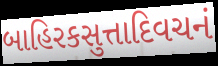
બાહિરકસુત્તાદિવચનં